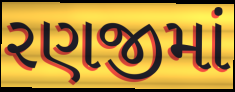
રણજીમાં